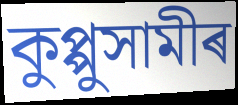
কুপ্পুসামীৰ